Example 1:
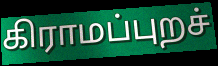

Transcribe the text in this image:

கிராமப்புறச்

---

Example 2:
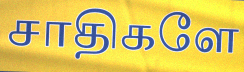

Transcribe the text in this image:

சாதிகளே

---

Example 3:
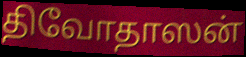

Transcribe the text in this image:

திவோதாஸன்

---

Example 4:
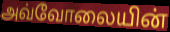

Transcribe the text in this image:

அவ்வோலையின்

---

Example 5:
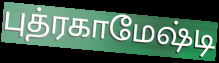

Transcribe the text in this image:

புத்ரகாமேஷ்டி